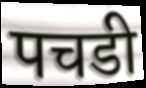
पचडी